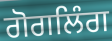
ਗੋਗਲਿੰਗ